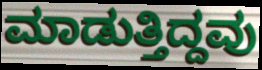
ಮಾಡುತ್ತಿದ್ದವು